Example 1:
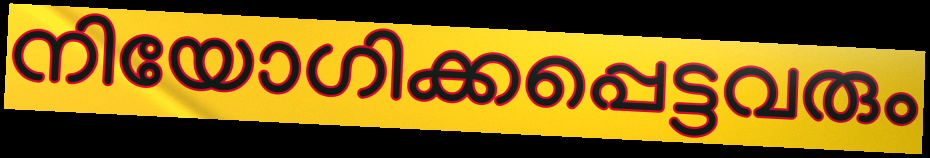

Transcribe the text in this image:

നിയോഗിക്കപ്പെട്ടവരും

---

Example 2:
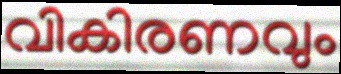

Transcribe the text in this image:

വികിരണവും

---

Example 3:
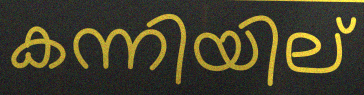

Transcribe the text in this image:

കന്നിയില്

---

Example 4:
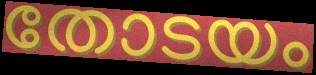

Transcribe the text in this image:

തോടയം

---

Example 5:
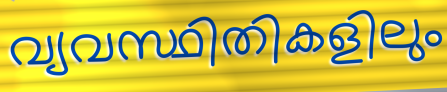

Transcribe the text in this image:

വ്യവസ്ഥിതികളിലും